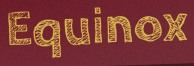
Equinox